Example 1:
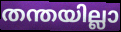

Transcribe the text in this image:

തന്തയില്ലാ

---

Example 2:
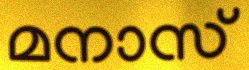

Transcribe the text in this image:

മനാസ്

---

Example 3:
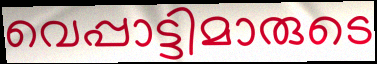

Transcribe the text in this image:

വെപ്പാട്ടിമാരുടെ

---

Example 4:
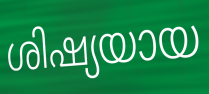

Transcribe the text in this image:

ശിഷ്യയായ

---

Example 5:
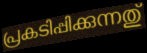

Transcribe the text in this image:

പ്രകടിപ്പിക്കുന്നതു്